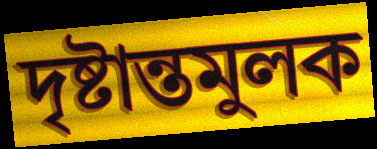
দৃষ্টান্তমুলক